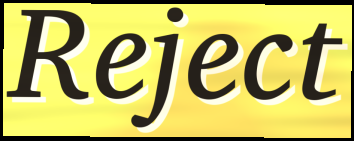
Reject